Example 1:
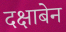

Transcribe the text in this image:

दक्षाबेन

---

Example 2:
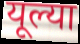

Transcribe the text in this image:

यूल्या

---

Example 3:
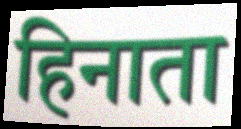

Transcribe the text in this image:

हिनाता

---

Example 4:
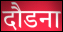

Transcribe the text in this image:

दौडना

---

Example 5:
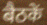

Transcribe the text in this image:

बैठकें